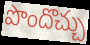
పొందొచ్చు